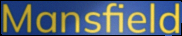
Mansfield